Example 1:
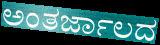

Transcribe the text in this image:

ಅಂತರ್ಜಾಲದ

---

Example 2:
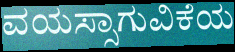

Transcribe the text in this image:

ವಯಸ್ಸಾಗುವಿಕೆಯ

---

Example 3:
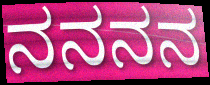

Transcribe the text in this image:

ನನನನ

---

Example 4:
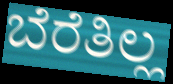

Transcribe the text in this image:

ಬೆರೆತಿಲ್ಲ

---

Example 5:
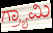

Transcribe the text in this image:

ಗ್ರ್ಯಾಮಿ